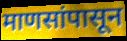
माणसांपासून